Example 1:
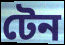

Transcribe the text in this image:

টেন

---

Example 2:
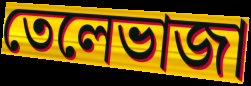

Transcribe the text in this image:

তেলেভাজা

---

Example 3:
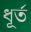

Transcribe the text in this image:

ধূর্ত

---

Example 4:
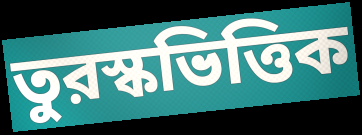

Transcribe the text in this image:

তুরস্কভিত্তিক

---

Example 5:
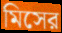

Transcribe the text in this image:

মিসের